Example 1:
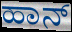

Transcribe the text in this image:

ಹಾನ್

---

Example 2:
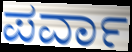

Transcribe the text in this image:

ಪರ್ವಾ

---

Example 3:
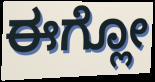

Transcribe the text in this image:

ಈಗ್ಲೋ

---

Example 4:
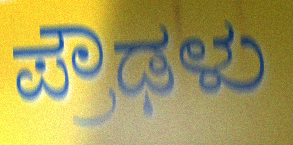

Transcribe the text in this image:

ಪ್ರೌಢಳು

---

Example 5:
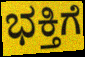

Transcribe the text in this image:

ಭಕ್ತಿಗೆ